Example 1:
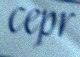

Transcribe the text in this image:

cepr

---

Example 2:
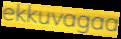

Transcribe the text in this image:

ekkuvagaa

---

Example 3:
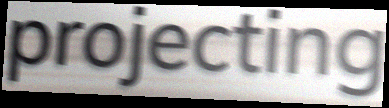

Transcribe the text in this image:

projecting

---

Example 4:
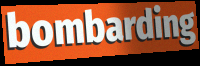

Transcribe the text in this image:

bombarding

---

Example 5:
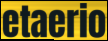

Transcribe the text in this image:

etaerio